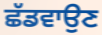
ਛੱਡਵਾਉਣ